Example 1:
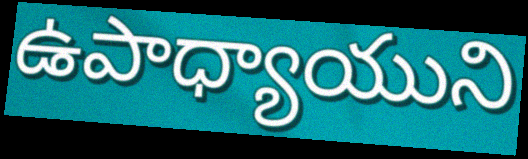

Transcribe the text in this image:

ఉపాధ్యాయుని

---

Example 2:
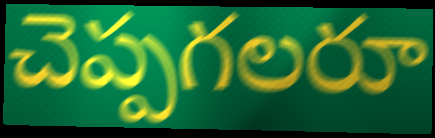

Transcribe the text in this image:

చెప్పగలరూ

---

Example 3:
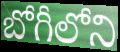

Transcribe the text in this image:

బోగీలోని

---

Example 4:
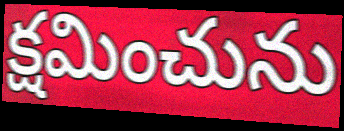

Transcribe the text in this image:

క్షమించును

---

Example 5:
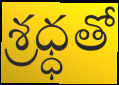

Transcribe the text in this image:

శ్రధ్ధతో